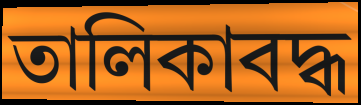
তালিকাবদ্ধ